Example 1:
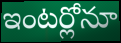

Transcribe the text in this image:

ఇంటర్లోనూ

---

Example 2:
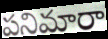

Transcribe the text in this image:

పనిమారా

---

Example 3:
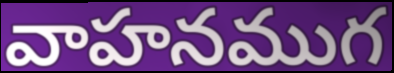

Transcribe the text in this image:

వాహనముగ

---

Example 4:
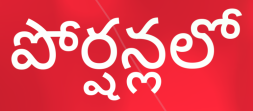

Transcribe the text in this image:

పోర్షన్లలో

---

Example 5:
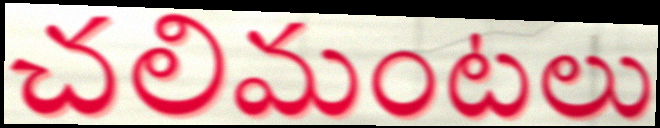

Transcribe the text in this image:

చలిమంటలు